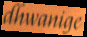
dhwanige